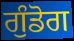
ਗੁੰਡੋਗ